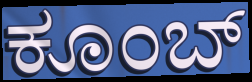
ಕೂಂಬ್